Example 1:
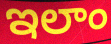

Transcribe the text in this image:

ఇలాం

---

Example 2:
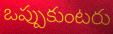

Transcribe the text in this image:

ఒప్పుకుంటరు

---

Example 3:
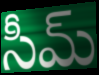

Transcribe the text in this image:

సీమ్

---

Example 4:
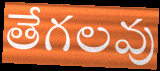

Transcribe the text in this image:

తేగలవు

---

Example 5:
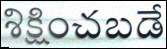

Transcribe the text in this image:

శిక్షించబడే